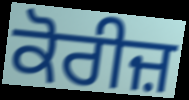
ਕੋਰੀਜ਼